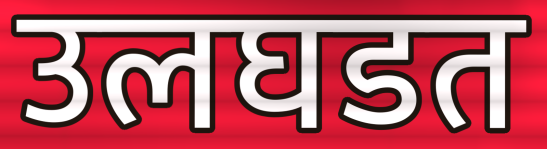
उलघडत